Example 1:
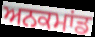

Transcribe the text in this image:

ਅਨਕਮਾਂਡ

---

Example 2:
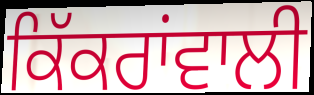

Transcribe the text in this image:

ਕਿੱਕਰਾਂਵਾਲੀ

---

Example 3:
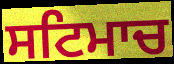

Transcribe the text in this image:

ਸਟਿਮਾਚ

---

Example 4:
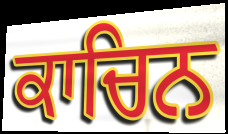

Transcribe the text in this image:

ਕਾਚਿਨ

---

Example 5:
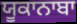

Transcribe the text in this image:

ਯੂਕਾਨਾਬਾ